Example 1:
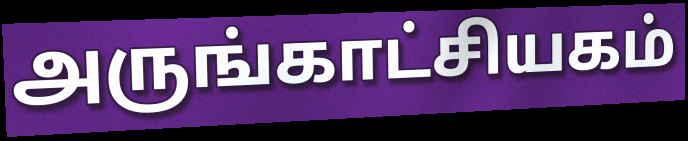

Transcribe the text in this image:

அருங்காட்சியகம்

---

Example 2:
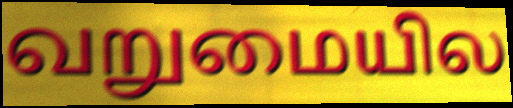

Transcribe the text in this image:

வறுமையில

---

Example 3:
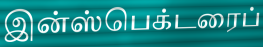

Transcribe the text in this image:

இன்ஸ்பெக்டரைப்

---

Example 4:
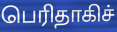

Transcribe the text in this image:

பெரிதாகிச்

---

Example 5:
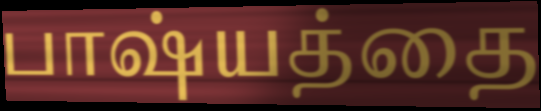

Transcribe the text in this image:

பாஷ்யத்தை